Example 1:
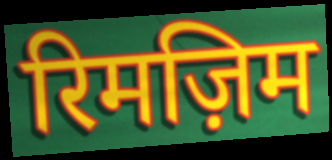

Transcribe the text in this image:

रिमज़िम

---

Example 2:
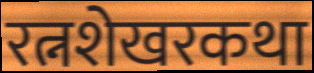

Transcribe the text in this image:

रत्नशेखरकथा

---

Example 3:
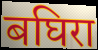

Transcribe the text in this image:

बघिरा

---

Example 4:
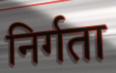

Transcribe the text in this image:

निर्गता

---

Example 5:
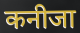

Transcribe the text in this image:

कनीजा